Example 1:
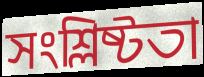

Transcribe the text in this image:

সংশ্লিষ্টতা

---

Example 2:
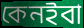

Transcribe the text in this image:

কেনইবা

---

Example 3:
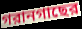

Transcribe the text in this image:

গরানগাছের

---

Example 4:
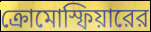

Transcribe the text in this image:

ক্রোমোস্ফিয়ারের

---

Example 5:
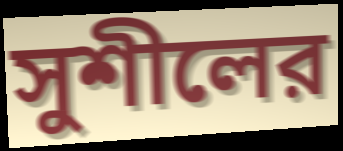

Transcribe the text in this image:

সুশীলের